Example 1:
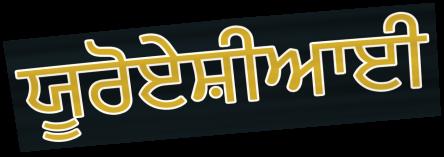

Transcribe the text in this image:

ਯੂਰੋਏਸ਼ੀਆਈ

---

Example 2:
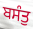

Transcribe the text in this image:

ਬਸੰਤੁ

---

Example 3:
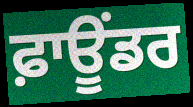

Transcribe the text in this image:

ਫ਼ਾਊਂਡਰ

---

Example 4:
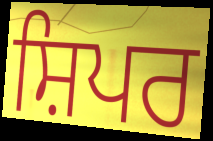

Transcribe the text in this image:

ਸ਼ਿਪਰ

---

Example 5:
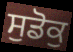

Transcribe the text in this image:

ਸੁਡੋਕੁ